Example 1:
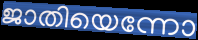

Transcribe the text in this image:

ജാതിയെന്നോ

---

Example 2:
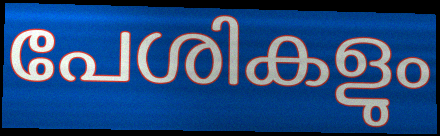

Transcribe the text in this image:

പേശികളും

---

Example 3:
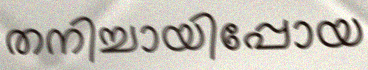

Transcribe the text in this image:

തനിച്ചായിപ്പോയ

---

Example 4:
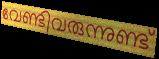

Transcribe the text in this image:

വേണ്ടിവരുന്നുണ്ട്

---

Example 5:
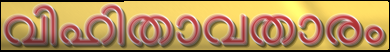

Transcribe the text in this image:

വിഹിതാവതാരം